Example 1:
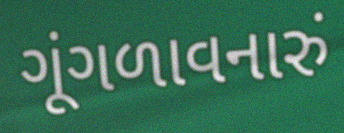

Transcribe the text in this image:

ગૂંગળાવનારું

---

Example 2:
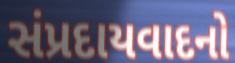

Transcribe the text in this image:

સંપ્રદાયવાદનો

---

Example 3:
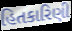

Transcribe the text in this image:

હિતકારિણી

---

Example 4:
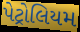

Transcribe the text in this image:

પેટ્રોલિયમ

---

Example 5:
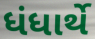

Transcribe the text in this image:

ધંધાર્થે